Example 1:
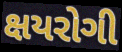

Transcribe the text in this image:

ક્ષયરોગી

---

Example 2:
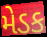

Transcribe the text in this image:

મેડક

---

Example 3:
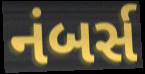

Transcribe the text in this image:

નંબર્સ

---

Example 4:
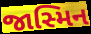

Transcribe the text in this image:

જાસ્મિન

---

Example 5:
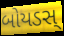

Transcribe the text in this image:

બોયડસ્